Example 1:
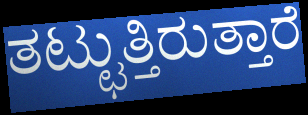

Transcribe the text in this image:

ತಟ್ಟುತ್ತಿರುತ್ತಾರೆ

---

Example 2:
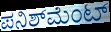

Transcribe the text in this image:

ಪನಿಶ್‌ಮೆಂಟ್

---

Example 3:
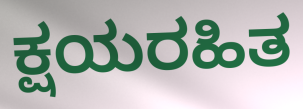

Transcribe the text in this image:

ಕ್ಷಯರಹಿತ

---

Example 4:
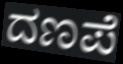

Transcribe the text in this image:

ದಣಪೆ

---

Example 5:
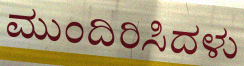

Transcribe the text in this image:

ಮುಂದಿರಿಸಿದಳು